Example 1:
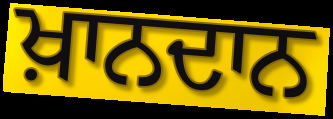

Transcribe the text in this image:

ਖ਼ਾਨਦਾਨ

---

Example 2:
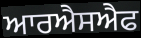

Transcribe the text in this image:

ਆਰਐਸਐਫ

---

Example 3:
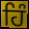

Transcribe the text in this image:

ਹਿੰ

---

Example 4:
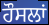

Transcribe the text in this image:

ਹੌਸਲਾਂ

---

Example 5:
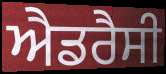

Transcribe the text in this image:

ਐਡਰੈਸੀ